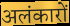
अलंकारों